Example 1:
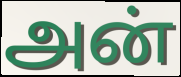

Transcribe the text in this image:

அன்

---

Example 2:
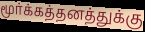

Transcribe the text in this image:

மூர்க்கத்தனத்துக்கு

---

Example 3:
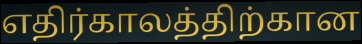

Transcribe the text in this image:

எதிர்காலத்திற்கான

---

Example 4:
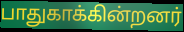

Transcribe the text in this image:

பாதுகாக்கின்றனர்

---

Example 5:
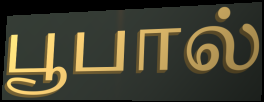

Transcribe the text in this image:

பூபால்